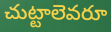
చుట్టాలెవరూ